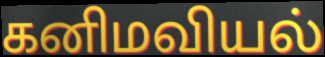
கனிமவியல்